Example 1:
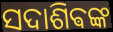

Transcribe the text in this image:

ସଦାଶିଵଙ୍କ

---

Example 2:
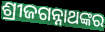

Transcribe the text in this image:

ଶ୍ରୀଜଗନ୍ନାଥଙ୍କର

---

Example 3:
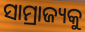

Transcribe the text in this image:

ସାମ୍ରାଜ୍ୟକୁ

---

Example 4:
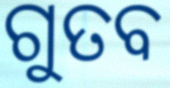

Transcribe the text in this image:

ଗୁତବ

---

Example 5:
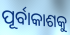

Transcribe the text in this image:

ପୂର୍ବାକାଶକୁ